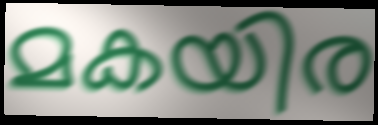
മകയിര